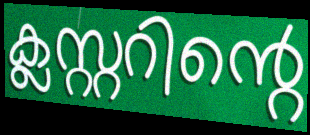
ക്ലസ്റ്ററിന്റെ